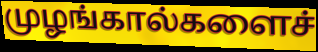
முழங்கால்களைச்